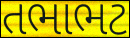
તભાભટ